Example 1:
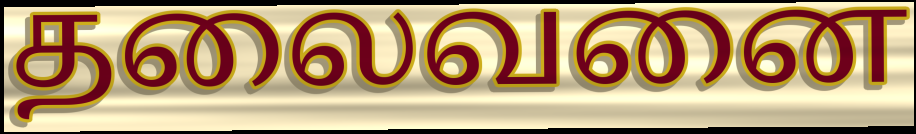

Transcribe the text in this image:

தலைவனை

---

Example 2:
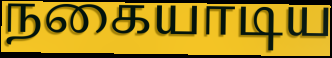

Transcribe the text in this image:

நகையாடிய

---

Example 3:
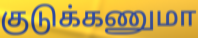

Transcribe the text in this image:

குடுக்கணுமா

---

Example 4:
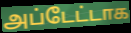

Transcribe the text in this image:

அப்டேட்டாக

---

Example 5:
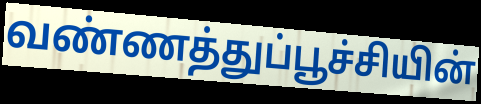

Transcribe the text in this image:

வண்ணத்துப்பூச்சியின்